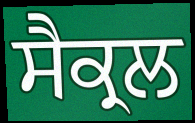
ਸੈਕ੍ਰਲ